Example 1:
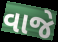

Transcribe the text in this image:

વાજે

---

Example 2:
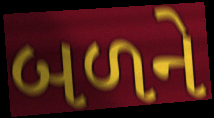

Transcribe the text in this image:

બળને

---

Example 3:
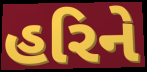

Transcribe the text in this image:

હરિને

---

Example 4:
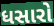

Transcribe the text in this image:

ધસારો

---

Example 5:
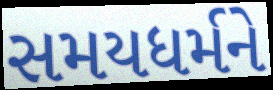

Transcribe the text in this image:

સમયધર્મને